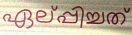
ഏല്പ്പിച്ചത്